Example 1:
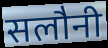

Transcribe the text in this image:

सलौनी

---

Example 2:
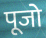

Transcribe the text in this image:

पूजो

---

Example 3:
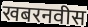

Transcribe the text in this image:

खबरनवीस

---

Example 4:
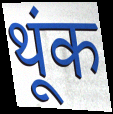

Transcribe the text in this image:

थूंक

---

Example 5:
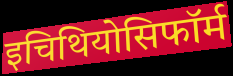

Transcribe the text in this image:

इचिथियोसिफॉर्म